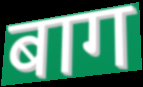
बाग